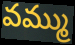
వమ్ము